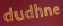
dudhne